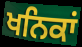
ਖਨਿਕਾਂ